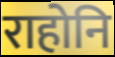
राहोनि